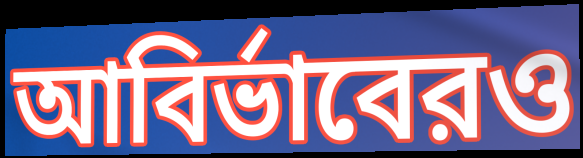
আবির্ভাবেরও